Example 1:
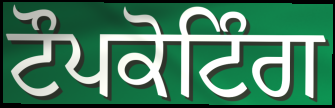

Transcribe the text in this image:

ਟੌਪਕੋਟਿੰਗ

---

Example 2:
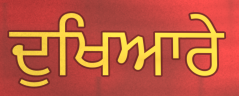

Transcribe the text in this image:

ਦੁਖਿਆਰੇ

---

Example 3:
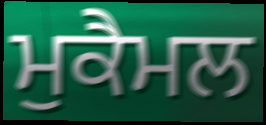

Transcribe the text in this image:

ਮੁਕੈਮਲ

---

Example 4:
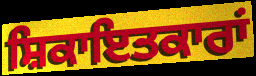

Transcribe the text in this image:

ਸ਼ਿਕਾਇਤਕਾਰਾਂ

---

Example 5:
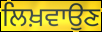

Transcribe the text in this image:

ਲਿਖ਼ਵਾਉਣ